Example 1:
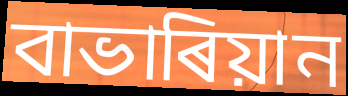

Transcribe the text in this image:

বাভাৰিয়ান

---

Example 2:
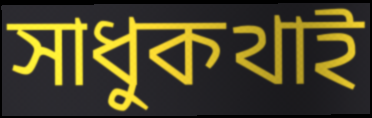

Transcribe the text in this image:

সাধুকথাই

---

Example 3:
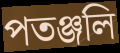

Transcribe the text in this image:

পতঞ্জলি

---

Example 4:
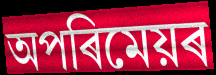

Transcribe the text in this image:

অপৰিমেয়ৰ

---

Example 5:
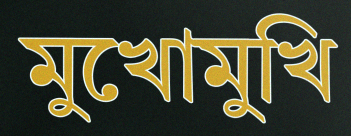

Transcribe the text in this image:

মুখোমুখি